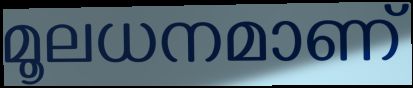
മൂലധനമാണ്